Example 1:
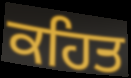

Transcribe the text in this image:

ਕਹਿਤ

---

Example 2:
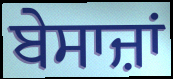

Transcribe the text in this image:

ਬੇਸਾਜ਼ਾਂ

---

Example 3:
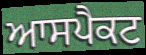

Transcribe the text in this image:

ਆਸਪੈਕਟ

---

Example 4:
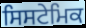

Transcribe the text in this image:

ਸਿਸਟੇਮਿਕ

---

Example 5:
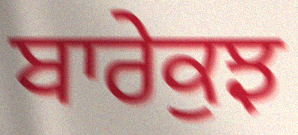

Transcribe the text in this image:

ਬਾਰੇਕੁਝ